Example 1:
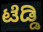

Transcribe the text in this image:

ಟೆಡ್ಡಿ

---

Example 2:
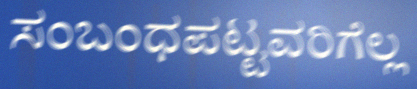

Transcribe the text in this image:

ಸಂಬಂಧಪಟ್ಟವರಿಗೆಲ್ಲ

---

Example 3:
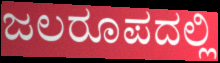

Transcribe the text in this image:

ಜಲರೂಪದಲ್ಲಿ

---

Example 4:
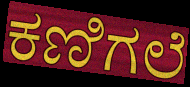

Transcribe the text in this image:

ಕಣಿಗಲೆ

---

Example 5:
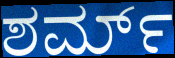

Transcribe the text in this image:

ಶರ್ಮ್